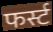
फर्स्ट